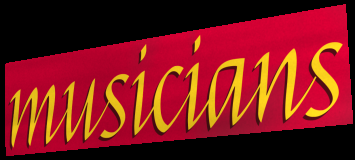
musicians